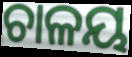
ଚାଳୟ